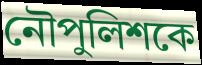
নৌপুলিশকে